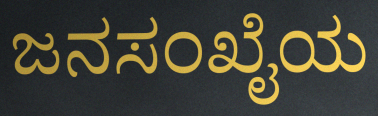
ಜನಸಂಖೈಯ